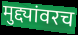
मुद्द्यांवरच